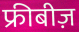
फ्रीबीज़